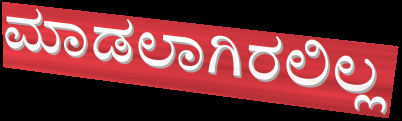
ಮಾಡಲಾಗಿರಲಿಲ್ಲ